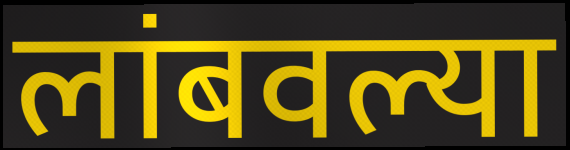
लांबवल्या